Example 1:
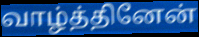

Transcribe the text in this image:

வாழ்த்தினேன்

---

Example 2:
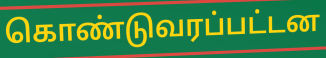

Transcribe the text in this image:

கொண்டுவரப்பட்டன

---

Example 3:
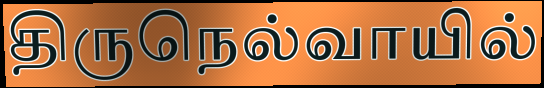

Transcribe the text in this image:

திருநெல்வாயில்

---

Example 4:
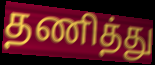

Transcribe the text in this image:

தணித்து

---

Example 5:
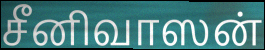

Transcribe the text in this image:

சீனிவாஸன்